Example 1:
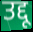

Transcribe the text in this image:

उद्दू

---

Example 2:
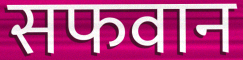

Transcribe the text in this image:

सफवान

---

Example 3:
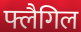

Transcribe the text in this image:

फ्लैगिल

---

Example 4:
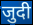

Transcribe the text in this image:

जुदी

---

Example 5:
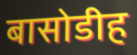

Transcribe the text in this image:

बासोडीह